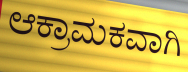
ಆಕ್ರಾಮಕವಾಗಿ